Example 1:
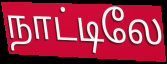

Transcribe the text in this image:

நாட்டிலே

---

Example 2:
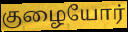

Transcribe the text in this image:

குழையோர்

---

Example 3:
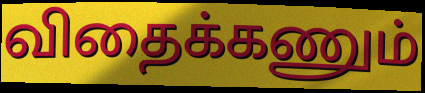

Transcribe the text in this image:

விதைக்கணும்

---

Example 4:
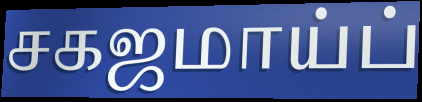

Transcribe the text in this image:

சகஜமாய்ப்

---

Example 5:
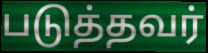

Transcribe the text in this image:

படுத்தவர்